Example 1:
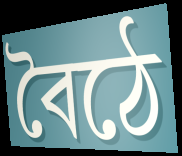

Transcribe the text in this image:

বৈঠে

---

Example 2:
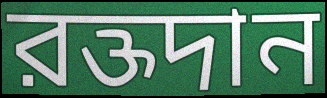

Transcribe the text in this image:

রক্তদান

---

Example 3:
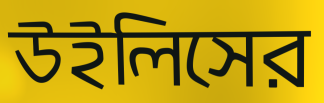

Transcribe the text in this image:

উইলিসের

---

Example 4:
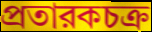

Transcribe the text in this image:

প্রতারকচক্র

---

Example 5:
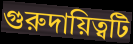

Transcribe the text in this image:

গুরুদায়িত্বটি